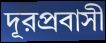
দূরপ্রবাসী